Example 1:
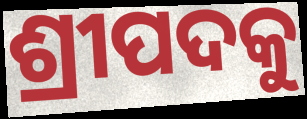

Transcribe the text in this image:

ଶ୍ରୀପଦକୁ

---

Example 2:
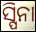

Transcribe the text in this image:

ସ୍ପିନା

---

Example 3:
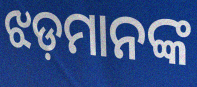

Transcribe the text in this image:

ଝଡ଼ମାନଙ୍କ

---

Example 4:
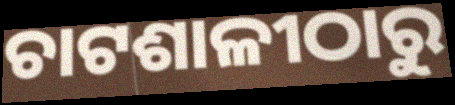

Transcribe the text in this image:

ଚାଟଶାଳୀଠାରୁ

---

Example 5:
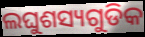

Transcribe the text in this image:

ଲଘୁଶସ୍ୟଗୁଡିକ